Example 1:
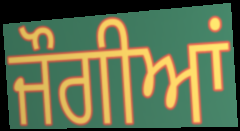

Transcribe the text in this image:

ਜੌਗੀਆਂ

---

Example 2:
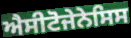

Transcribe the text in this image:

ਐਸੀਟੋਜੇਨੇਸਿਸ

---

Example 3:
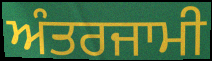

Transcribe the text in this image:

ਅੰਤਰਜਾਮੀ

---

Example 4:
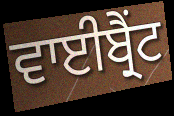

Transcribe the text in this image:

ਵਾਈਬ੍ਰੈਂਟ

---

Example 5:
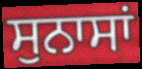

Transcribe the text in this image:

ਸੁਨਾਸਾਂ